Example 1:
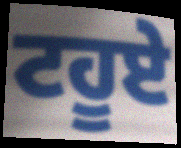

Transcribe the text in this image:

ਟਹੂਏ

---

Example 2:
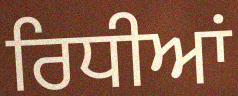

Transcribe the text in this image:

ਰਿਧੀਆਂ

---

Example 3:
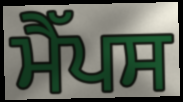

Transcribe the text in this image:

ਮੈੱਪਸ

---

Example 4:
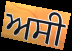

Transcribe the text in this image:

ਅਸੀ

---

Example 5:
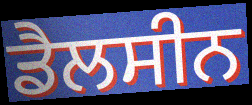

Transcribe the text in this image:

ਡੈਲਸੀਨ